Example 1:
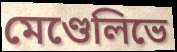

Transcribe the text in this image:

মেণ্ডেলিভে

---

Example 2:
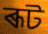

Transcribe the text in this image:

ৰূট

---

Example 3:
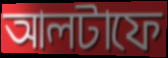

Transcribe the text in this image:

আলটাফে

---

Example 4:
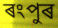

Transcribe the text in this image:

ৰংপুৰ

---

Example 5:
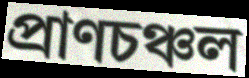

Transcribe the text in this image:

প্ৰাণচঞ্চল